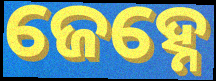
ଜେହ୍ନେ